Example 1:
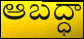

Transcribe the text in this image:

ఆబద్ధా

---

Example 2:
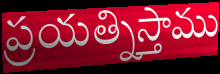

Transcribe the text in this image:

ప్రయత్నిస్తాము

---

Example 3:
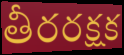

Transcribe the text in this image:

తీరరక్షక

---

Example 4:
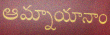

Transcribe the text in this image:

ఆమ్నాయానాం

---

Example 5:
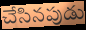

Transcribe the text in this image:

చేసినపుడు